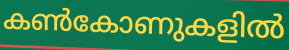
കൺകോണുകളിൽ